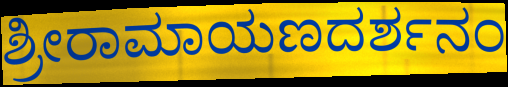
ಶ್ರೀರಾಮಾಯಣದರ್ಶನಂ